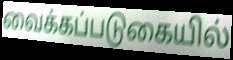
வைக்கப்படுகையில்